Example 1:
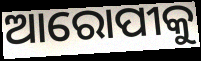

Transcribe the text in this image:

ଆରୋପୀକୁ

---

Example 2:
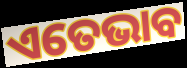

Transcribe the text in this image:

ଏତେଭାବ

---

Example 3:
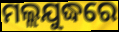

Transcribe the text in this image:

ମଲ୍ଲଯୁଦ୍ଧରେ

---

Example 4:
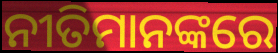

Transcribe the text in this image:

ନୀତିମାନଙ୍କରେ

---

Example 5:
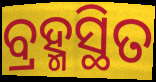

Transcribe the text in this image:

ବ୍ରହ୍ମସ୍ଥିତ